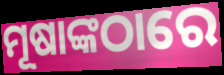
ମୂଷାଙ୍କଠାରେ